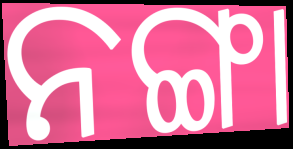
ନଙ୍ଗା